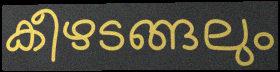
കീഴടങ്ങലും